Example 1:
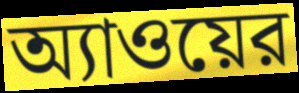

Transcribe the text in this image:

অ্যাওয়ের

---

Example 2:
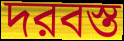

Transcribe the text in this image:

দরবস্ত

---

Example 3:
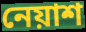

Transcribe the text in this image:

নেয়াশ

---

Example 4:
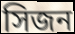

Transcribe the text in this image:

সিজন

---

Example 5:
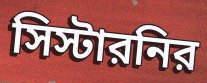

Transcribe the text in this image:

সিস্টারনির